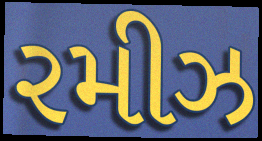
રમીઝ